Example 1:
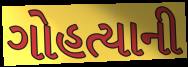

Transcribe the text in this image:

ગોહત્યાની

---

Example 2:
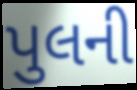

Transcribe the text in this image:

પુલની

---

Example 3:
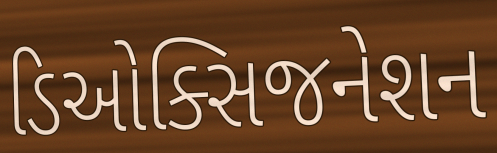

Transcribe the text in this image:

ડિઓક્સિજનેશન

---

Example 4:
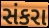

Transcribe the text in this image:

સંકરા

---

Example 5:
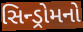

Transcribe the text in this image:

સિન્ડ્રોમનો